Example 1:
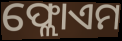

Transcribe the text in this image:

ଫ୍ଲୋଏମ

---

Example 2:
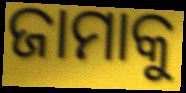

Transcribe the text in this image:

ଜାମାକୁ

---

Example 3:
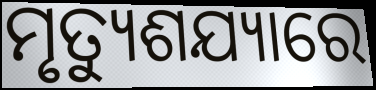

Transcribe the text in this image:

ମୃତ୍ୟୁଶଯ୍ୟାରେ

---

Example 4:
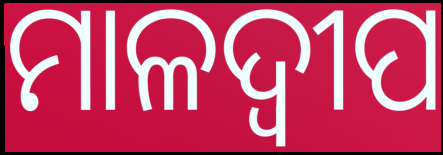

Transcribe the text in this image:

ମାଳଦ୍ଵୀପ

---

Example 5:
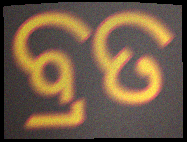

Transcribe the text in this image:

ବ୍ରତ